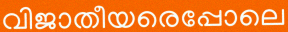
വിജാതീയരെപ്പോലെ